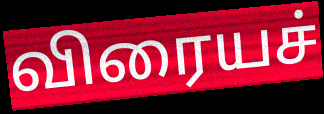
விரையச்